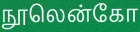
நூலென்கோ